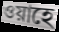
ওয়াহে